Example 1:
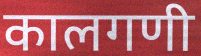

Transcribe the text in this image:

कालगणी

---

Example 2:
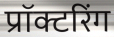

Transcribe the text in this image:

प्रॉक्टरिंग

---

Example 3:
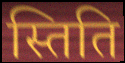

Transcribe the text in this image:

स्तिति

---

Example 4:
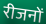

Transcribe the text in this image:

रीजनों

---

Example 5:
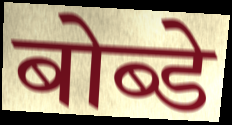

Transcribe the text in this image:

बोब्डे